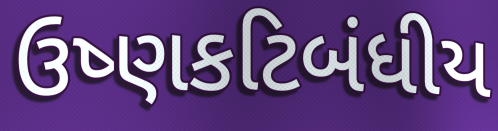
ઉષ્ણકટિબંધીય